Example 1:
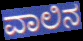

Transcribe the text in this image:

ವಾಲಿನ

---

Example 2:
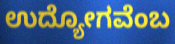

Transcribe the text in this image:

ಉದ್ಯೋಗವೆಂಬ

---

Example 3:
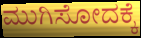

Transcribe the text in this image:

ಮುಗಿಸೋದಕ್ಕೆ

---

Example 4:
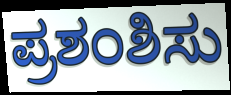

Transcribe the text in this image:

ಪ್ರಶಂಶಿಸು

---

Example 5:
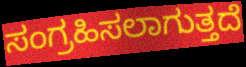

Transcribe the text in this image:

ಸಂಗ್ರಹಿಸಲಾಗುತ್ತದೆ